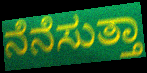
ನೆನೆಸುತ್ತಾ